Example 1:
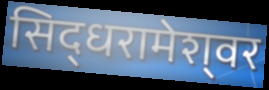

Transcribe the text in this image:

सिद्धरामेश्वर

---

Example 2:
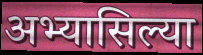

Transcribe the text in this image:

अभ्यासिल्या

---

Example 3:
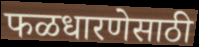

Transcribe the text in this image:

फळधारणेसाठी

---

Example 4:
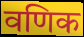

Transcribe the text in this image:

वणिक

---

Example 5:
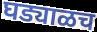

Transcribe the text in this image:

घड्याळच